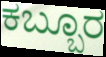
ಕಬ್ಬೂರ